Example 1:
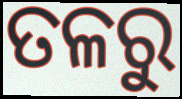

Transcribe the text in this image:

ତଳରୁ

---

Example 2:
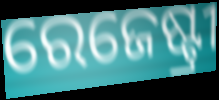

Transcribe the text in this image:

ରେଜେଷ୍ଟ୍ରୀ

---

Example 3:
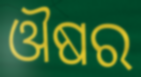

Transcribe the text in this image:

ଔଷର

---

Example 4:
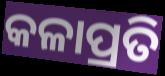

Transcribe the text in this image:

କଳାପ୍ରତି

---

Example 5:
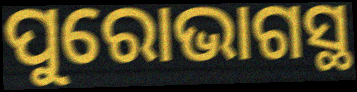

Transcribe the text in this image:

ପୁରୋଭାଗସ୍ଥ